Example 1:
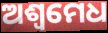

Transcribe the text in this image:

ଅଶ୍ଵମେଧ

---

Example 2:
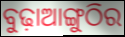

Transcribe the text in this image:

ବୁଢ଼ାଆଙ୍ଗୁଠିର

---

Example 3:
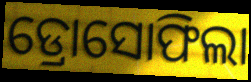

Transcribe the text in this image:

ଡ୍ରୋସୋଫିଲା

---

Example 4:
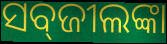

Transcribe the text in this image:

ସବ୍‌ଜୀଲଙ୍କା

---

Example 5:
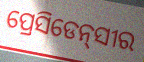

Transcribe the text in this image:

ପ୍ରେସିଡେନ୍‌ସୀର